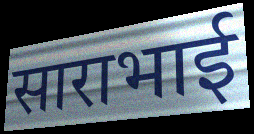
साराभाई